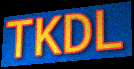
TKDL